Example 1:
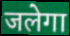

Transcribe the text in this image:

जलेगा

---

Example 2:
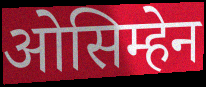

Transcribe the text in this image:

ओसिम्हेन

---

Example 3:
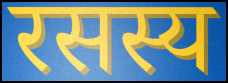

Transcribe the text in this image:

रसस्य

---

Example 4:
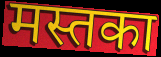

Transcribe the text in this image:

मस्तका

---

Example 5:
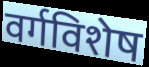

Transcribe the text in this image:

वर्गविशेष